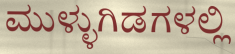
ಮುಳ್ಳುಗಿಡಗಳಲ್ಲಿ